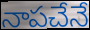
నాపచేనే